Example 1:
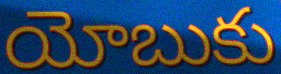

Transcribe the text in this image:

యోబుకు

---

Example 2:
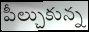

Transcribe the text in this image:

పీల్చుకున్న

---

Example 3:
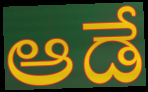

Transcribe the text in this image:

ఆడే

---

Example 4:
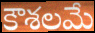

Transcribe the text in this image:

కౌశలమే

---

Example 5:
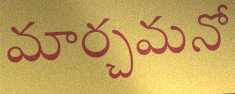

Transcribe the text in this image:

మార్చమనో